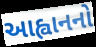
આહ્વાનનો